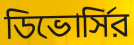
ডিভোর্সির